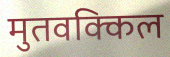
मुतवक्किल